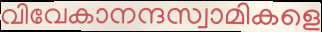
വിവേകാനന്ദസ്വാമികളെ